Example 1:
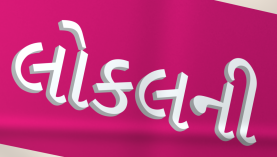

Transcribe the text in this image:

લોકલની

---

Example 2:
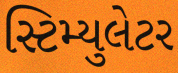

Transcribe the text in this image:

સ્ટિમ્યુલેટર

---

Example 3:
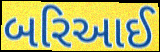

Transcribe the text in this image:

બરિઆઈ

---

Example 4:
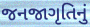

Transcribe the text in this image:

જનજાગૃતિનું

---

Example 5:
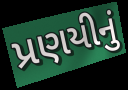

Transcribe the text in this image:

પ્રણયીનું